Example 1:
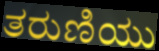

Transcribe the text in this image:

ತರುಣಿಯು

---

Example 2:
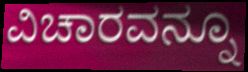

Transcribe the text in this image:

ವಿಚಾರವನ್ನೂ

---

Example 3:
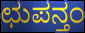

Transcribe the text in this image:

ಛುಪನ್ತಂ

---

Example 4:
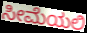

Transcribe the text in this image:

ಸೀಮೆಯಲಿ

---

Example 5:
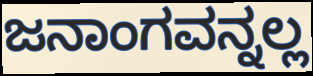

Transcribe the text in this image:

ಜನಾಂಗವನ್ನಲ್ಲ